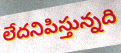
లేదనిపిస్తున్నది